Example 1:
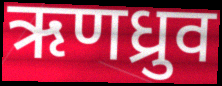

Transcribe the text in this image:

ॠणध्रुव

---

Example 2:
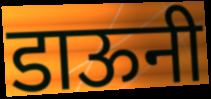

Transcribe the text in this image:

डाऊनी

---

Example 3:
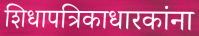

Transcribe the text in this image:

शिधापत्रिकाधारकांना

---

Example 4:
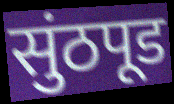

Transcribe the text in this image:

सुंठपूड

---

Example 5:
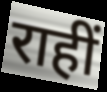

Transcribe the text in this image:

राहीं